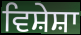
ਵਿਸ਼ੇਸ਼ਾ